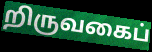
றிருவகைப்